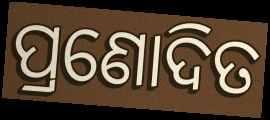
ପ୍ରଣୋଦିତ